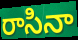
రాసినా